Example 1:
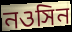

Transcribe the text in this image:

নওসিন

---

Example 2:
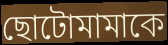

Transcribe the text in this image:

ছোটোমামাকে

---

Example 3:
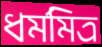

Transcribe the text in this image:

ধর্মমিত্র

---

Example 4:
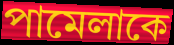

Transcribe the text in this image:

পামেলাকে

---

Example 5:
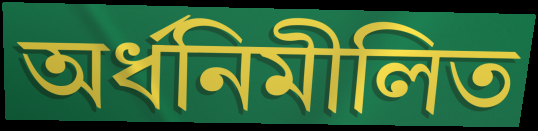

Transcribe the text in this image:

অর্ধনিমীলিত